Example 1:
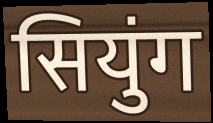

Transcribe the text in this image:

सियुंग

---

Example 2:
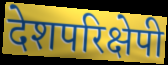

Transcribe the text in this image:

देशपरिक्षेपी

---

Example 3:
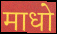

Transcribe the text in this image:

माधो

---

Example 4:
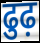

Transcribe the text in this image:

ढुढ़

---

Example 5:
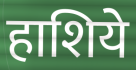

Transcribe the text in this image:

हाशिये